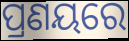
ପ୍ରଣୟରେ